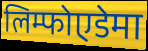
लिम्फोएडेमा